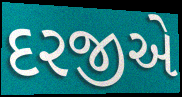
દરજીએ